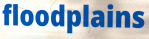
floodplains